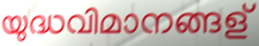
യുദ്ധവിമാനങ്ങള്